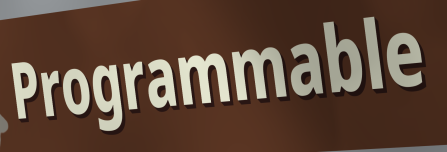
Programmable